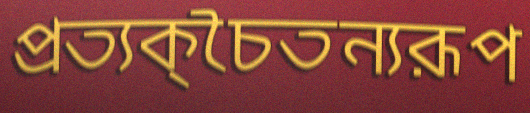
প্রত্যক্‌চৈতন্যরূপ